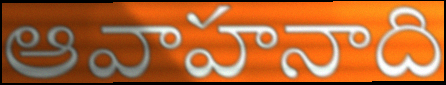
ఆవాహనాది